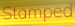
Stamped